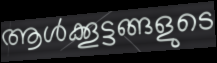
ആൾക്കൂട്ടങ്ങളുടെ